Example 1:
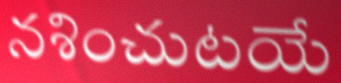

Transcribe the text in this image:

నశించుటయే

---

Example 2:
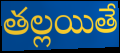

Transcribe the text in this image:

తల్లయితే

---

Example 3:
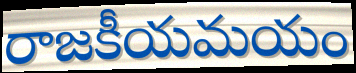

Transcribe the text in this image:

రాజకీయమయం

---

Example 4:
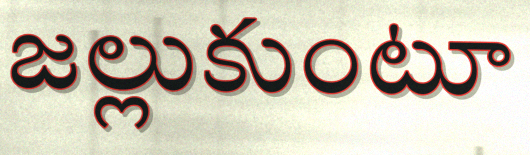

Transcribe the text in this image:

జల్లుకుంటూ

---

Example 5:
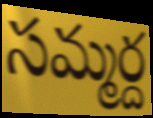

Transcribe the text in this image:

సమ్మర్ద